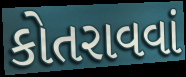
કોતરાવવાં